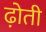
ढ़ोती